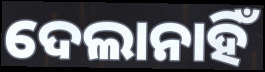
ଦେଲାନାହିଁ